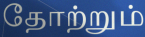
தோற்றும்